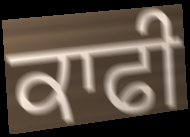
ਕਾਫੀ